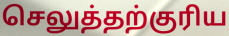
செலுத்தற்குரிய